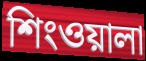
শিংওয়ালা